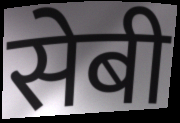
सेबी